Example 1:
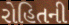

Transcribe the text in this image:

રોહિતની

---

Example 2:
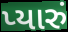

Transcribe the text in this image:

પ્યારું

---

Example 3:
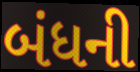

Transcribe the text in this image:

બંધની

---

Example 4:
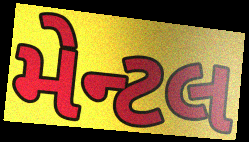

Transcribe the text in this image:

મેન્ટલ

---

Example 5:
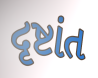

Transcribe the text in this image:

દૃષ્ટાંત